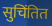
सुचिंतित